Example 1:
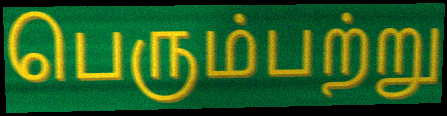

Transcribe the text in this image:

பெரும்பற்று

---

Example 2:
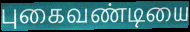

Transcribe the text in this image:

புகைவண்டியை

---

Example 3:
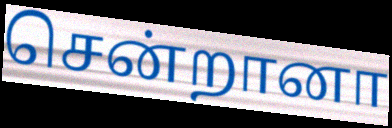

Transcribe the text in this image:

சென்றானா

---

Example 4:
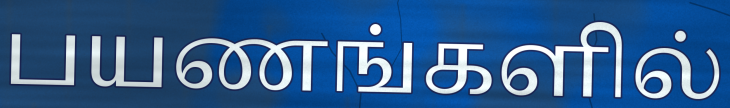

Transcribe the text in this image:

பயணங்களில்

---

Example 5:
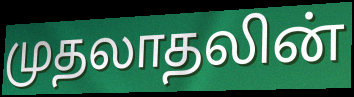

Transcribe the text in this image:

முதலாதலின்